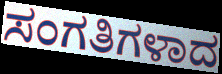
ಸಂಗತಿಗಳಾದ